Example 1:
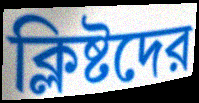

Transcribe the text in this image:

ক্লিষ্টদের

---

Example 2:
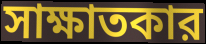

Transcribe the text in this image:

সাক্ষাতকার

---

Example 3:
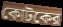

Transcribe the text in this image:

কোটকের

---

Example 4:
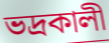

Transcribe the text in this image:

ভদ্রকালী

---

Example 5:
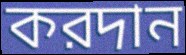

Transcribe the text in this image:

করদান